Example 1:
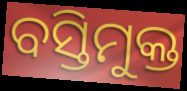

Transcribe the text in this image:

ବସ୍ତିମୁକ୍ତ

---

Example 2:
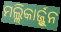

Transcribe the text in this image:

ମଲ୍ଲିକାର୍ଜ୍ଜୁନ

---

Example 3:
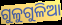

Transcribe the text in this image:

ଗୁଳୁଗୁଳିଆ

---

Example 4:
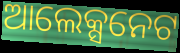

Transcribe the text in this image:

ଆଲେକ୍ସନେଟ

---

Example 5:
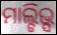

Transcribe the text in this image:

ମାଲ୍ଡିଭ୍ସ